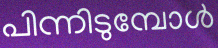
പിന്നിടുമ്പോൾ